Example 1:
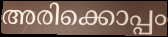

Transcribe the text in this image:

അരിക്കൊപ്പം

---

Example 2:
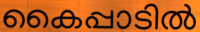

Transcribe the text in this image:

കൈപ്പാടിൽ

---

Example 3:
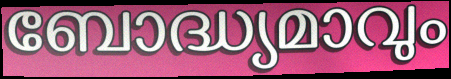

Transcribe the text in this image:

ബോദ്ധ്യമാവും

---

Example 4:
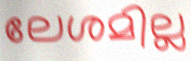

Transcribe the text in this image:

ലേശമില്ല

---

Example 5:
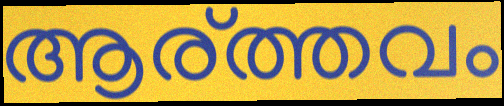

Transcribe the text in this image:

ആര്ത്തവം